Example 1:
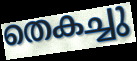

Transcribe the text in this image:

തെകച്ചു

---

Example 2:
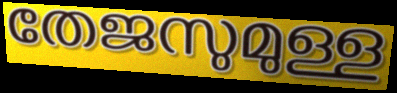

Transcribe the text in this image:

തേജസുമുള്ള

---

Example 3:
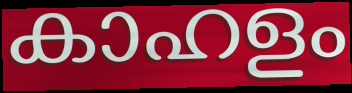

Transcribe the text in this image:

കാഹളം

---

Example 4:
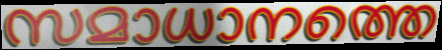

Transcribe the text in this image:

സമാധാനത്തെ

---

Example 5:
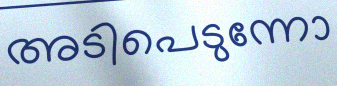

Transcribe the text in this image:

അടിപെടുന്നോ